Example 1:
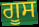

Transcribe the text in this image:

ਗੂਸ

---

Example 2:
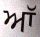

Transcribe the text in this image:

ਆੱ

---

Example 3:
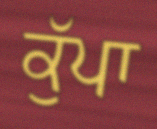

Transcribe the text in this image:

ਕੁੱਪਾ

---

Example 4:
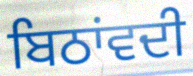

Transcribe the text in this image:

ਬਿਠਾਂਵਦੀ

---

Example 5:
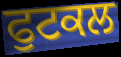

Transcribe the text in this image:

ਫੁਟਕਲ